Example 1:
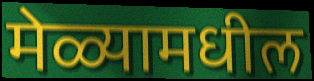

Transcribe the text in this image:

मेळ्यामधील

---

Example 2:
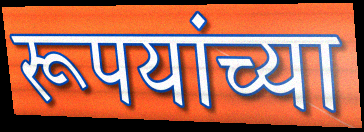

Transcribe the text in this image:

रूपयांच्या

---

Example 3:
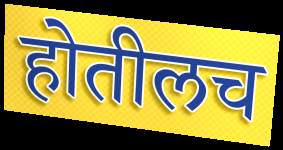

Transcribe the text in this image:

होतीलच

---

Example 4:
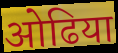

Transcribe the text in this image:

ओढिया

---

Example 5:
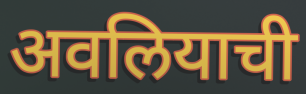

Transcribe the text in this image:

अवलियाची